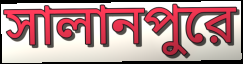
সালানপুরে